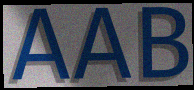
AAB